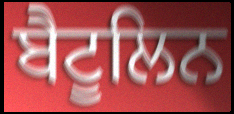
ਬੈਟੂਲਿਨ